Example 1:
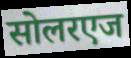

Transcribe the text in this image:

सोलरएज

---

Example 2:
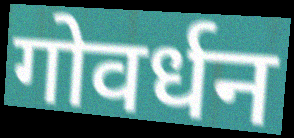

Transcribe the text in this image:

गोवर्धन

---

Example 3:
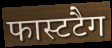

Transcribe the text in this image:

फास्टटैग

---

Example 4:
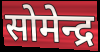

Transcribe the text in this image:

सोमेन्द्र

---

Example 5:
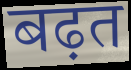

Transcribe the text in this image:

बढ़त